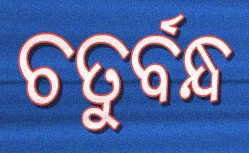
ଚତୁର୍ବନ୍ଧ